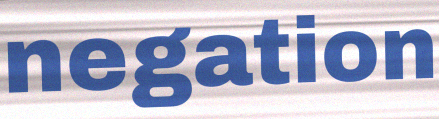
negation